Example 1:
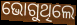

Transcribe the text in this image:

ଭୋଗୁଥିଲେ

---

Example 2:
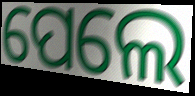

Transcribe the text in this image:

ପେଲେ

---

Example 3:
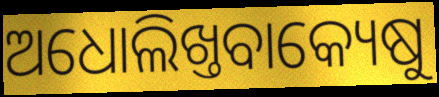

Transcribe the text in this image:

ଅଧୋଲିଖ୍ତବାକ୍ୟେଷୁ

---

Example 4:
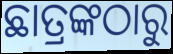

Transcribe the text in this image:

ଛାତ୍ରଙ୍କଠାରୁ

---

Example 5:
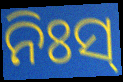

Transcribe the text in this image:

ନିଃସ୍